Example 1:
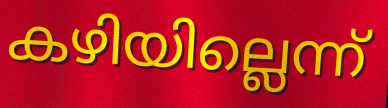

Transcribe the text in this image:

കഴിയില്ലെന്ന്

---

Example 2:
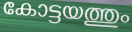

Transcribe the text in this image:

കോട്ടയത്തും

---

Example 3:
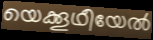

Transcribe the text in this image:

യെക്കൂഥീയേൽ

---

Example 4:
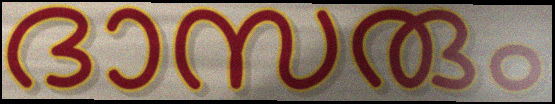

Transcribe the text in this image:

ദാസരും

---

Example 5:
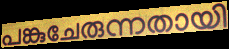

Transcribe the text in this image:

പങ്കുചേരുന്നതായി